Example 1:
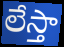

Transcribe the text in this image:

లేస్తా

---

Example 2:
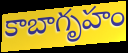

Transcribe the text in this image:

కాబాగృహం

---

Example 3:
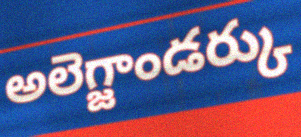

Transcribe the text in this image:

అలెగ్జాండర్కు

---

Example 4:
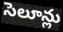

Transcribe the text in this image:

సెలూన్లు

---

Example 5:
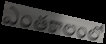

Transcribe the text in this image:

ఎంతకాలంలో